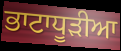
ਭਾਟਾਧੂੜੀਆ